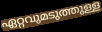
ഏറ്റവുമടുത്തുള്ള